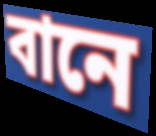
বানে